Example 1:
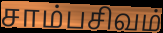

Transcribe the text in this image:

சாம்பசிவம்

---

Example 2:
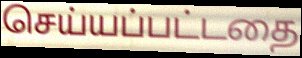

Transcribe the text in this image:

செய்யப்பட்டதை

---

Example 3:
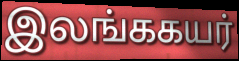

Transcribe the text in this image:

இலங்ககயர்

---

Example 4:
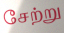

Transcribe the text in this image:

சேற்று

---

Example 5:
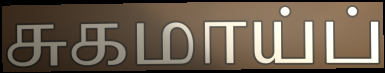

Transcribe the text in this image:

சுகமாய்ப்